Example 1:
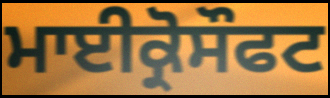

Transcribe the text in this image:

ਮਾਈਕ੍ਰੋਸੌਫਟ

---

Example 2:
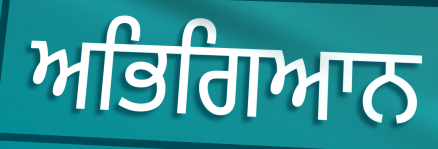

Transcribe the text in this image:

ਅਭਿਗਿਆਨ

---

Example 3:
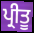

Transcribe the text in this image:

ਪ੍ਰੀਤੂ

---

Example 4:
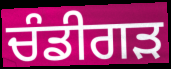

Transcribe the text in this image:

ਚੰਡੀਗਡ਼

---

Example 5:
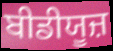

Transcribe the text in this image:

ਬੀਡੀਯੂਜ਼